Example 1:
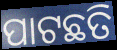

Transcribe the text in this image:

ପାଟଛତି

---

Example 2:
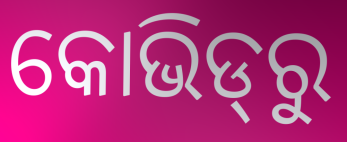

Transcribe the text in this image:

କୋଭିଡ୍‌ରୁ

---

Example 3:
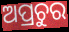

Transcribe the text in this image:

ଅପ୍ରଚୁର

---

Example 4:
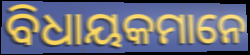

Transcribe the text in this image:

ବିଧାୟକମାନେ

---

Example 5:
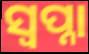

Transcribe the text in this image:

ସ୍ଵପ୍ନା